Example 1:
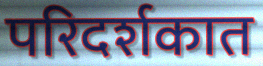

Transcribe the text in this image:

परिदर्शकात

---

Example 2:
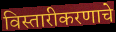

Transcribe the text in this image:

विस्तारीकरणाचे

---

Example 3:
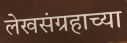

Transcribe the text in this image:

लेखसंग्रहाच्या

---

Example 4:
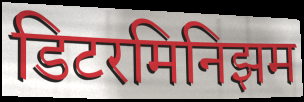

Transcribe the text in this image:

डिटरमिनिझम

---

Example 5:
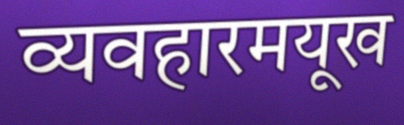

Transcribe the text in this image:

व्यवहारमयूख